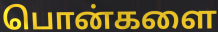
பொன்களை